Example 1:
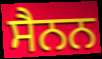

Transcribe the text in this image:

ਸੈਨਨ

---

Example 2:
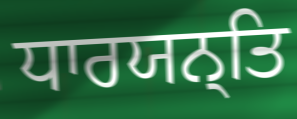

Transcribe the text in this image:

ਧਾਰਯਨ੍ਤਿ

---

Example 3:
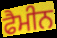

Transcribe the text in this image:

ਫੈਮੀਨ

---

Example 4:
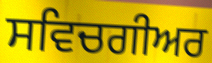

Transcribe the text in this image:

ਸਵਿਚਗੀਅਰ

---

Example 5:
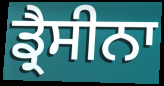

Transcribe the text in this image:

ਡ੍ਰੈਸੀਨਾ